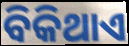
ବିକିଥାଏ